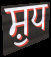
ਸ਼ੁਧ